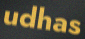
udhas